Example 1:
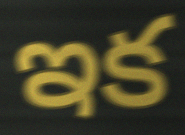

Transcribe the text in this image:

ఇక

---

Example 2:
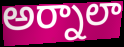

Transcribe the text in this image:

అర్నాలా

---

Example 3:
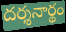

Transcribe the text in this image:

దర్శనార్థం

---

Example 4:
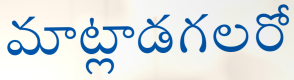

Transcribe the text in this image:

మాట్లాడగలరో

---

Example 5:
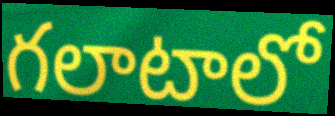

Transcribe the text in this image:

గలాటాలో